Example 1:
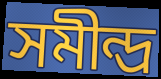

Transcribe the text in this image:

সমীন্দ্ৰ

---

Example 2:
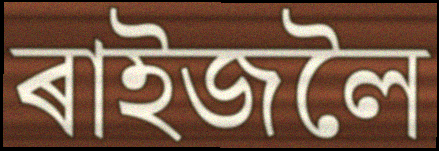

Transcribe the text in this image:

ৰাইজলৈ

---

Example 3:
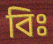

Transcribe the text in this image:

বিঃ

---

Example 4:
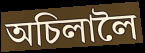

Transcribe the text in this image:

অচিলালৈ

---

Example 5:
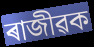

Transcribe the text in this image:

ৰাজীৱক